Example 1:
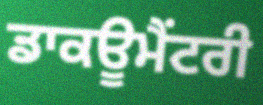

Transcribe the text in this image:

ਡਾਕਊਮੈਂਟਰੀ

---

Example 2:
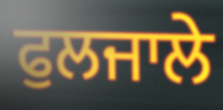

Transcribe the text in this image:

ਫੁਲਜਾਲੇ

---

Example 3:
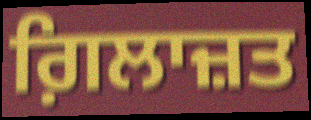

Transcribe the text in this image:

ਗ਼ਿਲਾਜ਼ਤ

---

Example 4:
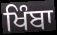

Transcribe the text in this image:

ਖਿੰਬਾ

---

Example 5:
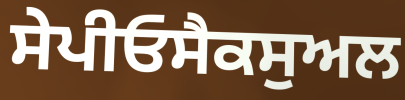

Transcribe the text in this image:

ਸੇਪੀਓਸੈਕਸੁਅਲ